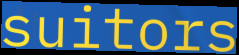
suitors